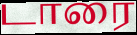
டாரை